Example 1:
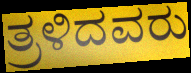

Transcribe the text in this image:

ತ್ರಳಿದವರು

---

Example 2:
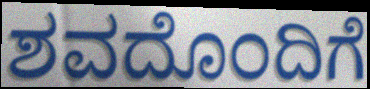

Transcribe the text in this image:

ಶವದೊಂದಿಗೆ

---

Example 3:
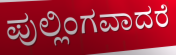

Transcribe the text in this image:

ಪುಲ್ಲಿಂಗವಾದರೆ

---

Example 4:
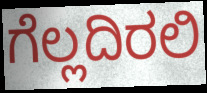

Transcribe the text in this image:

ಗೆಲ್ಲದಿರಲಿ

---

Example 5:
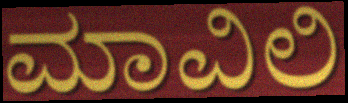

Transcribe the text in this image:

ಮಾವಿಲಿ